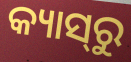
କ୍ୟାସ୍‌ରୁ